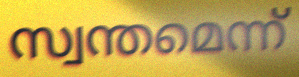
സ്വന്തമെന്ന്